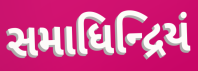
સમાધિન્દ્રિયં